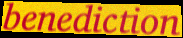
benediction